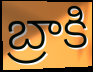
బ్రాకి